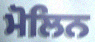
ਮੋਲਿਨ